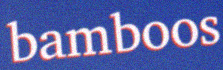
bamboos